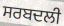
ਸਰਬਦਲੀ